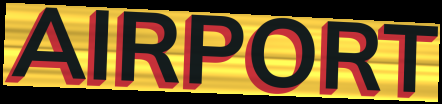
AIRPORT